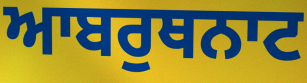
ਆਬਰੁਥਨਾਟ